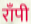
राँपी